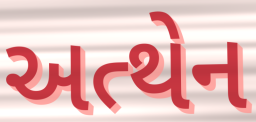
અત્થેન